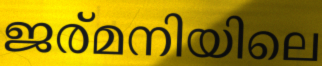
ജര്മനിയിലെ